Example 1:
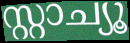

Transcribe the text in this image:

സ്റ്റാച്യൂ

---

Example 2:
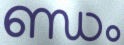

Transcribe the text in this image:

ണ്ഡം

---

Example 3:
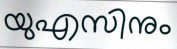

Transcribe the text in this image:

യുഎസിനും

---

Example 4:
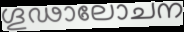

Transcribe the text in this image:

ഗൂഢാലോചന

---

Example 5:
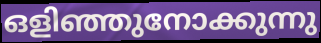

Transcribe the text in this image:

ഒളിഞ്ഞുനോക്കുന്നു